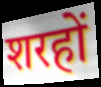
शरहों